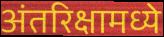
अंतरिक्षामध्ये